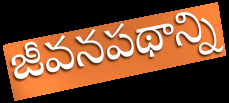
జీవనపథాన్ని